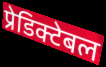
प्रेडिक्टेबल